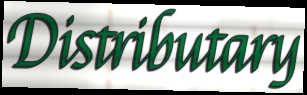
Distributary